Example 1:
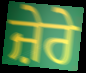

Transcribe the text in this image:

ਜ਼ੇਰੇ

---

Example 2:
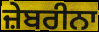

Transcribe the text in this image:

ਜ਼ੇਬਰੀਨਾ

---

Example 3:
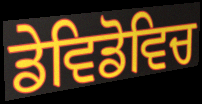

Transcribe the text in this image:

ਡੇਵਿਡੋਵਿਚ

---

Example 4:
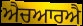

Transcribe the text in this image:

ਐਚਆਰਐ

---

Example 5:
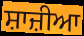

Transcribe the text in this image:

ਸ਼ਾਜ਼ੀਆ